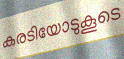
കരടിയോടുകൂടെ